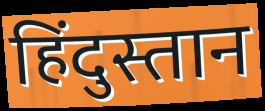
हिंदुस्‍तान